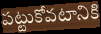
పట్టుకోవటానికి